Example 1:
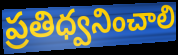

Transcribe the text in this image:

ప్రతిధ్వనించాలి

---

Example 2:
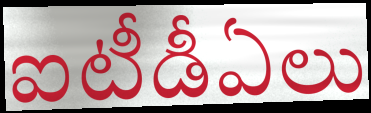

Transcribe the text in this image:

ఐటీడీఏలు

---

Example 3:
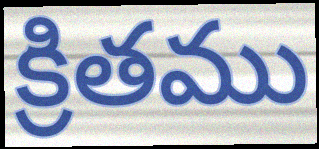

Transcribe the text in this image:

క్రితము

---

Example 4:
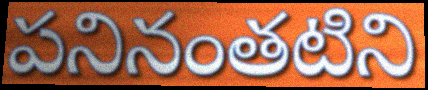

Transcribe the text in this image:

పనినంతటిని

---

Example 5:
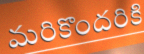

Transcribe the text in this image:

మరికొందరికి